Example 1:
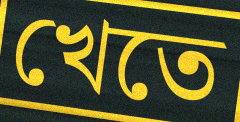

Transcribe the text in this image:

খেতে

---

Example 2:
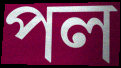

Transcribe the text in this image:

পল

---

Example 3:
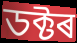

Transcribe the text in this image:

ডক্টৰ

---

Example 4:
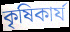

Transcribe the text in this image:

কৃষিকাৰ্য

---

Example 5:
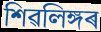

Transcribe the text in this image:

শিৱলিঙ্গৰ